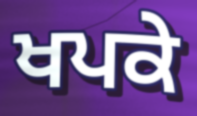
ਖਪਕੇ